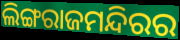
ଲିଙ୍ଗରାଜମନ୍ଦିରର